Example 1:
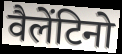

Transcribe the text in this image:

वैलेंटिनो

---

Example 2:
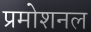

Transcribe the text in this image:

प्रमोशनल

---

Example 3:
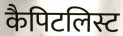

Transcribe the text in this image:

कैपिटलिस्ट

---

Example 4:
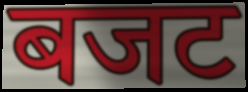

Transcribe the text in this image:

बजट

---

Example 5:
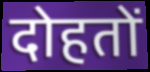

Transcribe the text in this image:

दोहतों